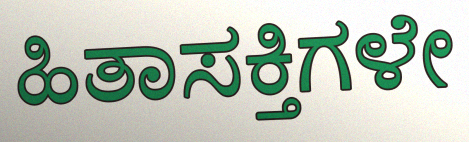
ಹಿತಾಸಕ್ತಿಗಳೇ